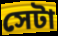
সেটা